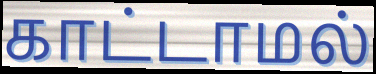
காட்டாமல்